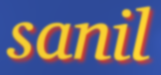
sanil